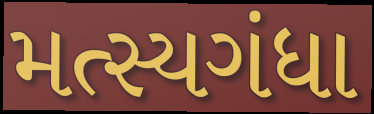
મત્સ્યગંધા